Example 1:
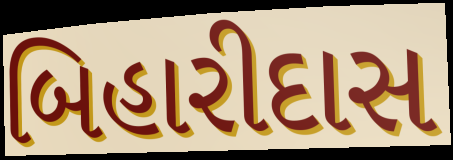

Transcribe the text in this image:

બિહારીદાસ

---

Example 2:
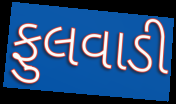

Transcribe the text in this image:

ફુલવાડી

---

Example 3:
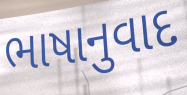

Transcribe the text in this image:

ભાષાનુવાદ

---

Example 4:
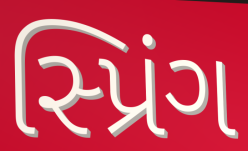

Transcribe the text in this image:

સ્પ્રિંગ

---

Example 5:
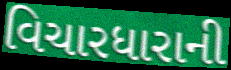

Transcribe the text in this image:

વિચારધારાની